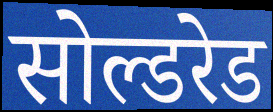
सोल्डरेड